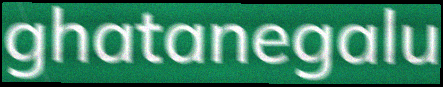
ghatanegalu